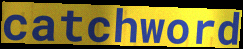
catchword